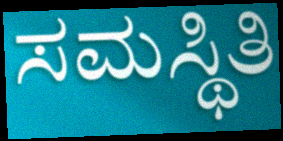
ಸಮಸ್ಥಿತಿ